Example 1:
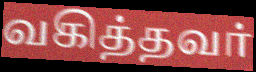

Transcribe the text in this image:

வகித்தவர்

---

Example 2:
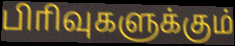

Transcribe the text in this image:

பிரிவுகளுக்கும்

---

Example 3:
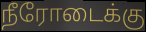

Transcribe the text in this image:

நீரோடைக்கு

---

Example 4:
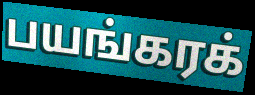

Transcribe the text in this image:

பயங்கரக்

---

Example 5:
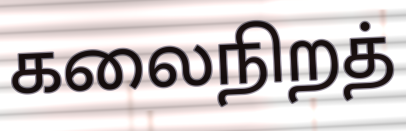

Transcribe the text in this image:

கலைநிறத்